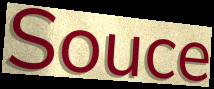
Souce